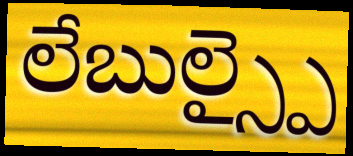
లేబుల్స్పై